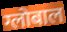
ग्लोबाल